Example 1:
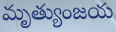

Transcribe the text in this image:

మృత్యుంజయ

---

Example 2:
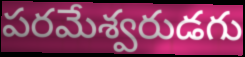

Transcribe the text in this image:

పరమేశ్వరుడగు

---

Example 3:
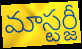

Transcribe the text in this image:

మాస్టర్జీ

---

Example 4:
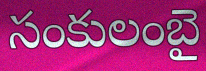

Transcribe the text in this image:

సంకులంబై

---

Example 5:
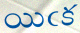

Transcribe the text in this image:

యిఁక